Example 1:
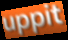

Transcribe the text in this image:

uppit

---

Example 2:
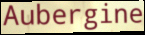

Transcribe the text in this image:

Aubergine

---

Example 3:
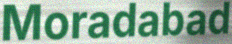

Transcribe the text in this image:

Moradabad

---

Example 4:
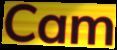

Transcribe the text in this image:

Cam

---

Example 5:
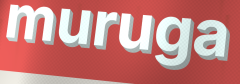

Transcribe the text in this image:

muruga